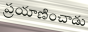
ప్రయాణించాడు